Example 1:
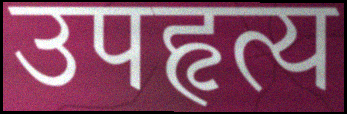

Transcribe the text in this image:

उपहृत्य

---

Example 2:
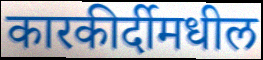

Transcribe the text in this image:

कारकीर्दीमधील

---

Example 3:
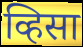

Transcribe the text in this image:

व्हिसा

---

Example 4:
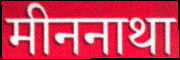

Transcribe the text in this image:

मीननाथा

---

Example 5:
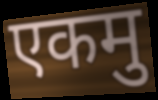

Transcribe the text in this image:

एकमु